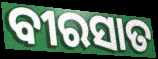
ବୀରସାତ